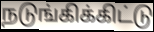
நடுங்கிக்கிட்டு